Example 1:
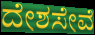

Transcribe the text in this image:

ದೇಶಸೇವೆ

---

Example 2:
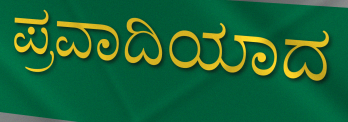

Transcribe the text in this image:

ಪ್ರವಾದಿಯಾದ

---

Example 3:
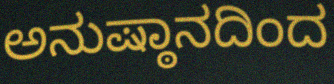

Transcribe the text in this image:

ಅನುಷ್ಠಾನದಿಂದ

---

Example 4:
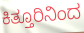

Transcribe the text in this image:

ಕಿತ್ತೂರಿನಿಂದ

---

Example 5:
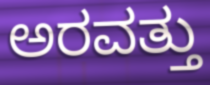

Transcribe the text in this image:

ಅರವತ್ತು